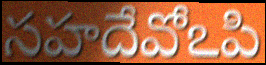
సహదేవోఽపి